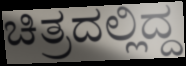
ಚಿತ್ರದಲ್ಲಿದ್ದ